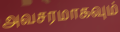
அவசரமாகவும்